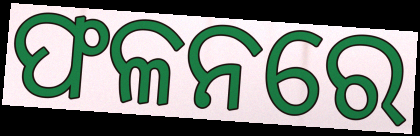
ଫଳନରେ